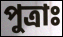
পুত্রাঃ